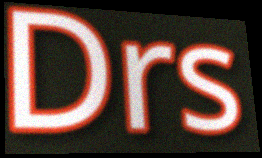
Drs